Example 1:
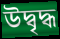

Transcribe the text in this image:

উদ্বৃদ্ধ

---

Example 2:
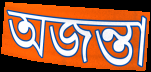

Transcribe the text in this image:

অজন্তা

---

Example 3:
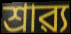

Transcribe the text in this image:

শ্ৰাৱ্য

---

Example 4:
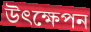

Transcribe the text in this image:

উৎক্ষেপন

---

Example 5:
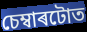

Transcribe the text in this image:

চেম্বাৰটোত